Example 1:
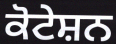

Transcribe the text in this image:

ਕੋਟੇਸ਼ਨ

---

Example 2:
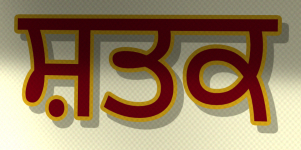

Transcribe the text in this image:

ਸ਼ਤਕ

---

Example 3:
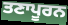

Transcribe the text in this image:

ਤਣਾਪੂਰਨ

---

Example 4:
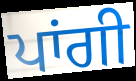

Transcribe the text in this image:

ਪਾਂਗੀ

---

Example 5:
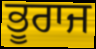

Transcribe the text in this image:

ਭੂਰਾਜ